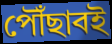
পৌঁছাবই